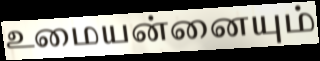
உமையன்னையும்